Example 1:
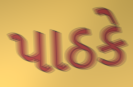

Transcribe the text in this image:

પાઠકે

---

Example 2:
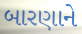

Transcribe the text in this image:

બારણાને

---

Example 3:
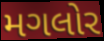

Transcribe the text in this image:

મગલોર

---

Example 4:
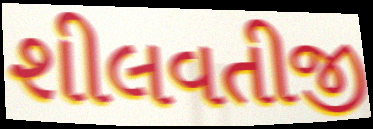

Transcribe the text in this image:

શીલવતીજી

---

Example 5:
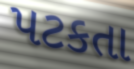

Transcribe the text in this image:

પટકતા